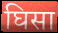
घिसा